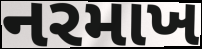
નરમાખ